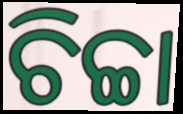
ଚିଚ୍ଚା